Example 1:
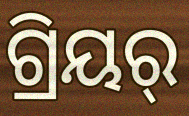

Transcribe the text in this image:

ଗ୍ରିୟର୍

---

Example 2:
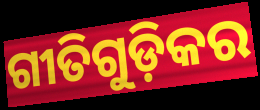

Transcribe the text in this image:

ଗୀତିଗୁଡ଼ିକର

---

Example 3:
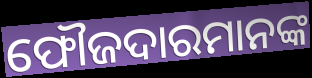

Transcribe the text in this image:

ଫୌଜଦାରମାନଙ୍କ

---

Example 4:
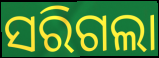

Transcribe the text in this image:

ସରିଗଲା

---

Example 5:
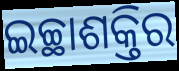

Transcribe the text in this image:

ଇଚ୍ଛାଶକ୍ତିର